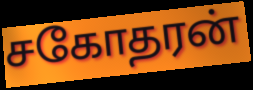
சகோதரன்